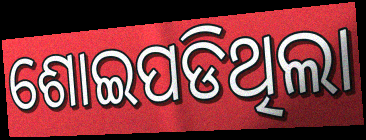
ଶୋଇପଡିଥିଲା